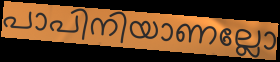
പാപിനിയാണല്ലോ